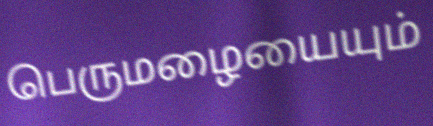
பெருமழையையும்